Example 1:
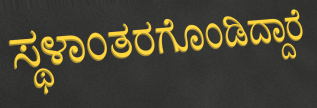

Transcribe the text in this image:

ಸ್ಥಳಾಂತರಗೊಂಡಿದ್ದಾರೆ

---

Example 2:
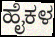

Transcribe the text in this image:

ಹೈಕಳ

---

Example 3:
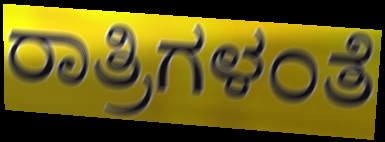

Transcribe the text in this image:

ರಾತ್ರಿಗಳಂತೆ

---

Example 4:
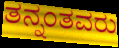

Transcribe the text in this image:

ತನ್ನಂತವರು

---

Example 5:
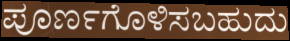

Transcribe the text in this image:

ಪೂರ್ಣಗೊಳಿಸಬಹುದು